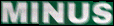
MINUS